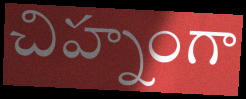
చిహ్నంగా